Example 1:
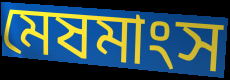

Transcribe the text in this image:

মেষমাংস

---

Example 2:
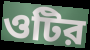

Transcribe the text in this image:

ওটির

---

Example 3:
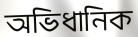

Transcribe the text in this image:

অভিধানিক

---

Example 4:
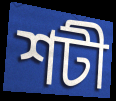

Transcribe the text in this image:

শটী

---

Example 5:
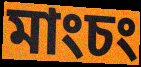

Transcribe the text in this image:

মাংচং